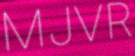
MJVR